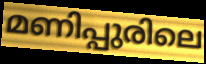
മണിപ്പുരിലെ